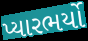
પ્યારભર્યો